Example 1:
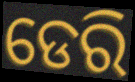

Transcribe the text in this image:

ଡେରି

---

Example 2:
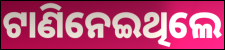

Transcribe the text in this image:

ଟାଣିନେଇଥିଲେ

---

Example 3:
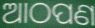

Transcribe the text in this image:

ଆଠପଣ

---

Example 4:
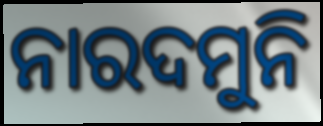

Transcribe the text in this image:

ନାରଦମୁନି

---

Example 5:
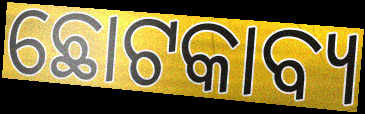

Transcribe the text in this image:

ଛୋଟକାବ୍ୟ